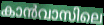
കാൻവാസിലെ